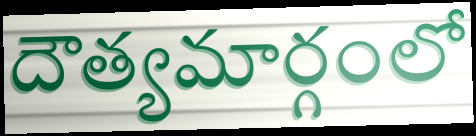
దౌత్యమార్గంలో